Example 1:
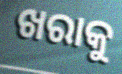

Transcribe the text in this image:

ଖରାକୁ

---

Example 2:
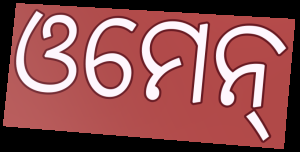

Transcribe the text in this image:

ଓମେନ୍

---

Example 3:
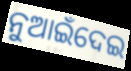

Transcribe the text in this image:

ନୁଆଇଁଦେଇ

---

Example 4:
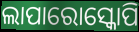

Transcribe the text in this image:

ଲାପାରୋସ୍କୋପି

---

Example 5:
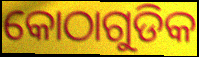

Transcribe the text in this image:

କୋଠାଗୁଡିକ